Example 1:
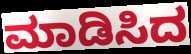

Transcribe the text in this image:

ಮಾಡಿಸಿದ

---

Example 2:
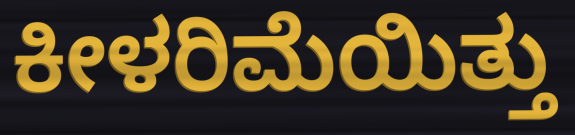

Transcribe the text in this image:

ಕೀಳರಿಮೆಯಿತ್ತು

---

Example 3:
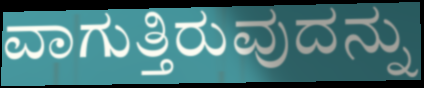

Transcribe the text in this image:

ವಾಗುತ್ತಿರುವುದನ್ನು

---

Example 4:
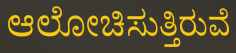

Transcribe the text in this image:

ಆಲೋಚಿಸುತ್ತಿರುವೆ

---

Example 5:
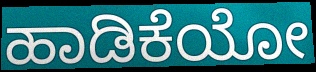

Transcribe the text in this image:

ಹಾಡಿಕೆಯೋ